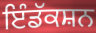
ਇੰਡੱਕਸ਼ਨ